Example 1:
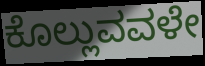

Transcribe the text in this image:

ಕೊಲ್ಲುವವಳೇ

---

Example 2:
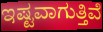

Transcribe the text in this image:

ಇಷ್ಟವಾಗುತ್ತಿವೆ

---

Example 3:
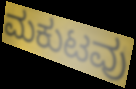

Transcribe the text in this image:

ಮಕುಟವು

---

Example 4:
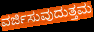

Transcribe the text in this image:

ವರ್ಜಿಸುವುದುತ್ತಮ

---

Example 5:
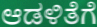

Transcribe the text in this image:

ಆಡಳಿತೆಗೆ